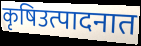
कृषिउत्पादनात